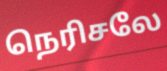
நெரிசலே